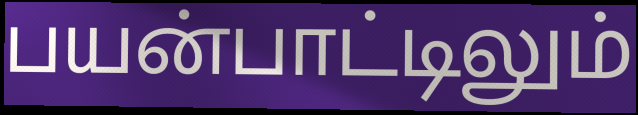
பயன்பாட்டிலும்